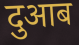
दुआब